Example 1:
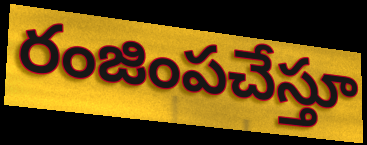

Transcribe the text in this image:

రంజింపచేస్తూ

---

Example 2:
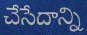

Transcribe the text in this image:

చేసేదాన్ని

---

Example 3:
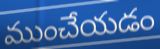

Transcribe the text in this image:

ముంచేయడం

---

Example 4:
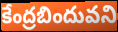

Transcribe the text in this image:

కేంద్రబిందువని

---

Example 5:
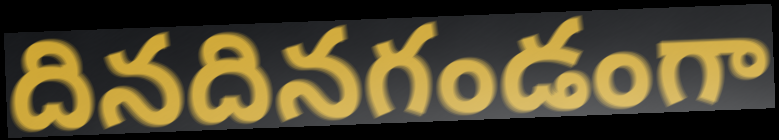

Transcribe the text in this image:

దినదినగండంగా